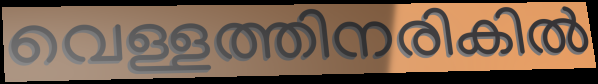
വെള്ളത്തിനരികിൽ